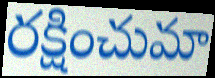
రక్షించుమా